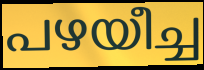
പഴയീച്ച